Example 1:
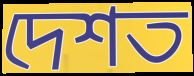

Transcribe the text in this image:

দেশত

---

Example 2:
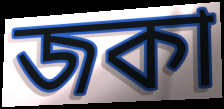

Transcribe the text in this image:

জকা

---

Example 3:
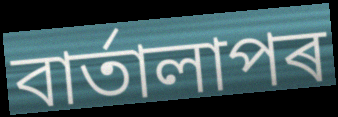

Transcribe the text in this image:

বাৰ্তালাপৰ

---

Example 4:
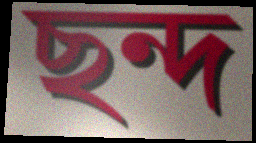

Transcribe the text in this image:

ছন্দ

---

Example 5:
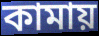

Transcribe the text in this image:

কামায়